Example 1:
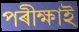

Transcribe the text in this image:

পৰীক্ষাই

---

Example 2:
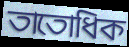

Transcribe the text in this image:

তাতোধিক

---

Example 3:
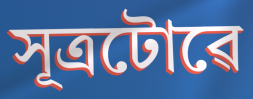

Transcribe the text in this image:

সূত্ৰটোৱে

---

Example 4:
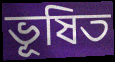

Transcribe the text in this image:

ভূষিত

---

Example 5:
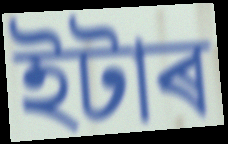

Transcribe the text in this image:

ইটাৰ